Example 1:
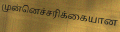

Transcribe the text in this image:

முன்னெச்சரிக்கையான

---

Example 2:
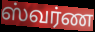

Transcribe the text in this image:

ஸ்வர்ண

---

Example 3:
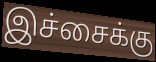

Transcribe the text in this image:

இச்சைக்கு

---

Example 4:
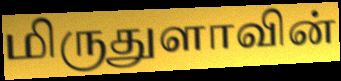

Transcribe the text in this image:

மிருதுளாவின்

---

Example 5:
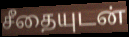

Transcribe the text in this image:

சீதையுடன்